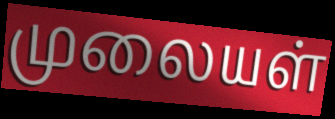
முலையள்